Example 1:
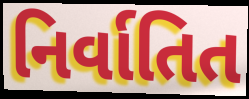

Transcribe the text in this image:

નિર્વાતિત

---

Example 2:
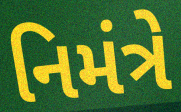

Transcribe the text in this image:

નિમંત્રે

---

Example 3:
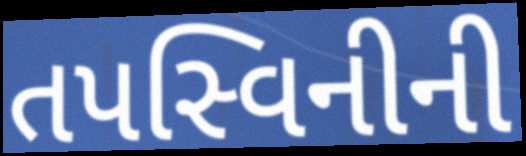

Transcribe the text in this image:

તપસ્વિનીની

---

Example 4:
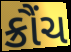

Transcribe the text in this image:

ક્રૌંચ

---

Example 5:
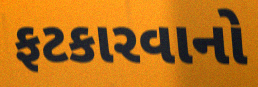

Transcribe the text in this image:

ફટકારવાનો